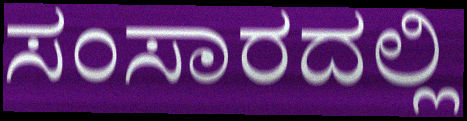
ಸಂಸಾರದಲ್ಲಿ